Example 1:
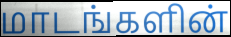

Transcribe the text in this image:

மாடங்களின்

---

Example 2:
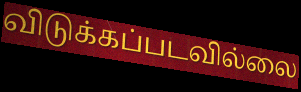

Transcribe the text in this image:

விடுக்கப்படவில்லை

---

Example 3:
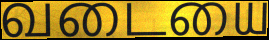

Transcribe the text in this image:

வடையை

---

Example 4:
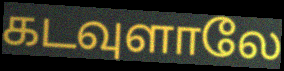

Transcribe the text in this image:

கடவுளாலே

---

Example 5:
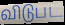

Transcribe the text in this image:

விடுபட